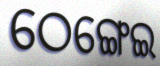
ଠେଙ୍ଗେଇ